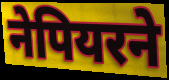
नेपियरने